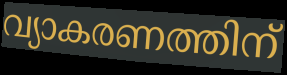
വ്യാകരണത്തിന്